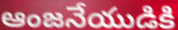
ఆంజనేయుడికి